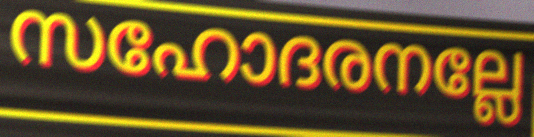
സഹോദരനല്ലേ